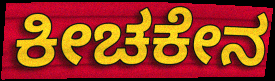
ಕೀಚಕೇನ